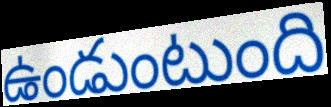
ఉండుంటుంది